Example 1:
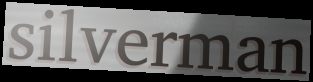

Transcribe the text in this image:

silverman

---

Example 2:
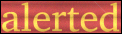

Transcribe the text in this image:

alerted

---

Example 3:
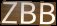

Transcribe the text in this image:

ZBB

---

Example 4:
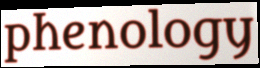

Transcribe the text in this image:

phenology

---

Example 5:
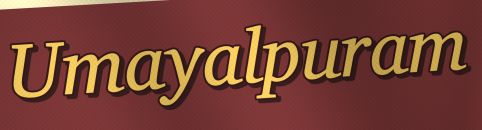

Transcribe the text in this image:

Umayalpuram